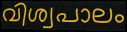
വിശ്വപാലം